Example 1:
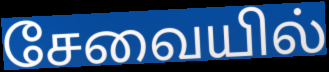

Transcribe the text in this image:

சேவையில்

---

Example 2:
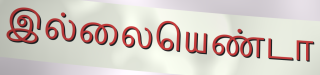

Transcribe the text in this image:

இல்லையெண்டா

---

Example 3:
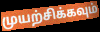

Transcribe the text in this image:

முயற்சிக்கவும்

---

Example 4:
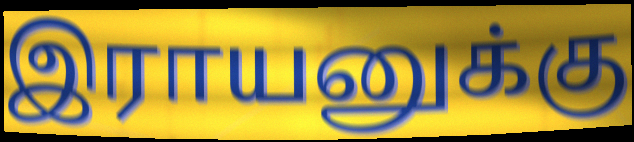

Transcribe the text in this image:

இராயனுக்கு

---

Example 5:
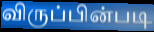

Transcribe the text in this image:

விருப்பின்படி